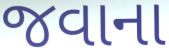
જવાના